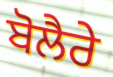
ਬੋਲੈਰੇ